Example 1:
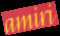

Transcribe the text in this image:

amiri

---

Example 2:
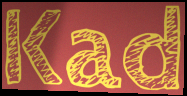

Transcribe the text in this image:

Kad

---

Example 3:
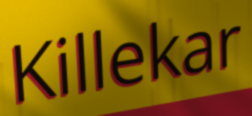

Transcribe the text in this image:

Killekar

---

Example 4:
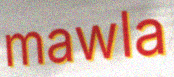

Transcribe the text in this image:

mawla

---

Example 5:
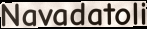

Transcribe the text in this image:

Navadatoli